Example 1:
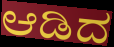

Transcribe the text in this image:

ಆಡಿದ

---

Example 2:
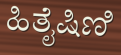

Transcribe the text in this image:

ಹಿತೈಷಿಣಿ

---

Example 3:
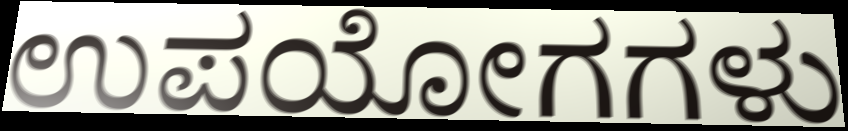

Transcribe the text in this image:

ಉಪಯೋಗಗಳು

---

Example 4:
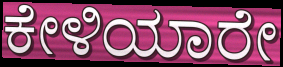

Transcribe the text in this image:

ಕೇಳಿಯಾರೇ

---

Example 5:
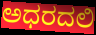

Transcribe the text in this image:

ಅಧರದಲಿ